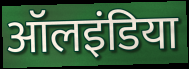
ऑलइंडिया